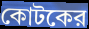
কোটকের